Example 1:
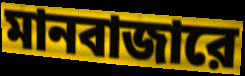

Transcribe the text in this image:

মানবাজারে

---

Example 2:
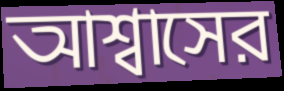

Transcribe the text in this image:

আশ্বাসের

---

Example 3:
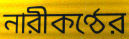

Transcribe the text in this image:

নারীকণ্ঠের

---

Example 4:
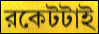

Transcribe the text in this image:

রকেটটাই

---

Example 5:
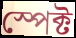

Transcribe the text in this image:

স্পেক্ট